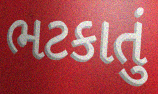
ભટકાતું